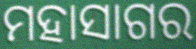
ମହାସାଗର